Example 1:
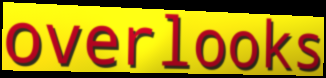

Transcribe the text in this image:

overlooks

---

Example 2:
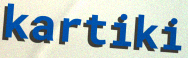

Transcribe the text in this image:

kartiki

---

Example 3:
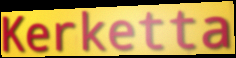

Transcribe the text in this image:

Kerketta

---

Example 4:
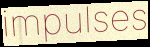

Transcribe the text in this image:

impulses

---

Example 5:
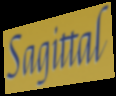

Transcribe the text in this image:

Sagittal